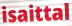
isaittal